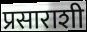
प्रसाराशी